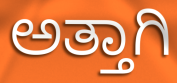
ಅತ್ತಾಗಿ